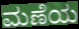
ಮಣೆಯ